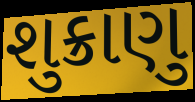
શુક્રાણુ